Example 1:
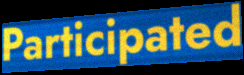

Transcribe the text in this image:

Participated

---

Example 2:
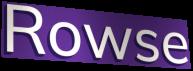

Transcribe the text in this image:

Rowse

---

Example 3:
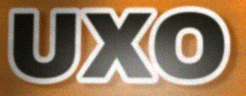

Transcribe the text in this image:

UXO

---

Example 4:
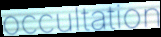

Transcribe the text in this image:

occultation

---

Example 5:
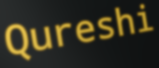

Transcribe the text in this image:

Qureshi